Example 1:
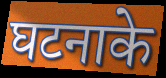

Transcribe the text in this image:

घटनाके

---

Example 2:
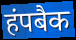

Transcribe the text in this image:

हंपबैक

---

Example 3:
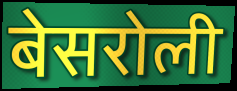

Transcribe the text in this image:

बेसरोली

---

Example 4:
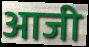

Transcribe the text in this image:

आजी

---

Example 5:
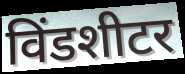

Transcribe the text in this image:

विंडशीटर